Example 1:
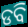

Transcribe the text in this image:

ଡବି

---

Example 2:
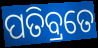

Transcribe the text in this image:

ପତିବ୍ରତେ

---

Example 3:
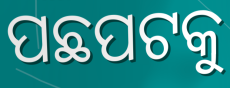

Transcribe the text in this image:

ପଛପଟକୁ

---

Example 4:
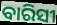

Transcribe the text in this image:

ବାରିସୀ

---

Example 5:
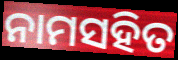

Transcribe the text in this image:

ନାମସହିତ